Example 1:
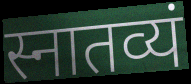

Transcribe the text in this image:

स्नातव्यं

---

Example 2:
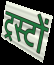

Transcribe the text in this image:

ट्रस्टों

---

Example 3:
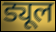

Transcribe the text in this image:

ड्यूल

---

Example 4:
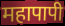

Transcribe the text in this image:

महापापी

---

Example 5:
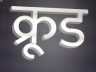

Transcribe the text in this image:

क्रूड